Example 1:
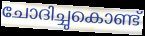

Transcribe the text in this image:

ചോദിച്ചുകൊണ്ട്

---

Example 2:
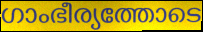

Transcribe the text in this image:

ഗാംഭീര്യത്തോടെ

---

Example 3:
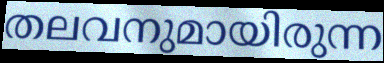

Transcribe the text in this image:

തലവനുമായിരുന്ന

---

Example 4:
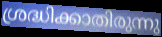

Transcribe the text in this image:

ശ്രദ്ധിക്കാതിരുന്നു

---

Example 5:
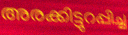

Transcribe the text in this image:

അരക്കിട്ടുറപ്പിച്ച